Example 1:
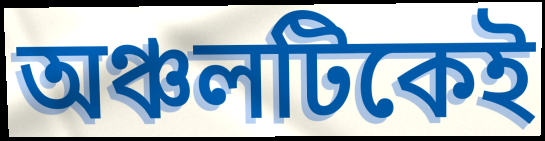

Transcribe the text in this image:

অঞ্চলটিকেই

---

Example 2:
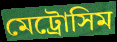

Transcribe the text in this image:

মেট্রোসিম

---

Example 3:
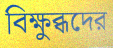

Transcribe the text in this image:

বিক্ষুব্ধদের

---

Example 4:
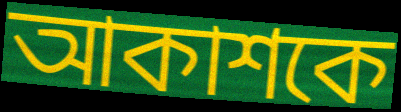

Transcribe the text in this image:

আকাশকে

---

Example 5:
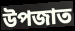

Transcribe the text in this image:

উপজাত